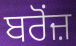
ਬਰੋਂਜ਼